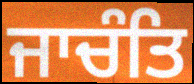
ਜਾਚੰਤਿ